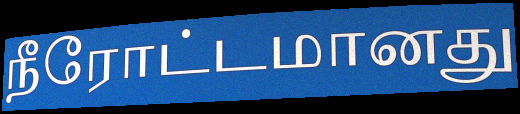
நீரோட்டமானது